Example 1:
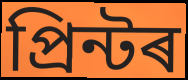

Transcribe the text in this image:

প্ৰিন্টৰ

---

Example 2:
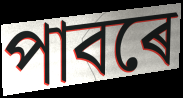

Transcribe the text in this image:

পাবৰে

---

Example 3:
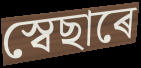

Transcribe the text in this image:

স্বেছাৰে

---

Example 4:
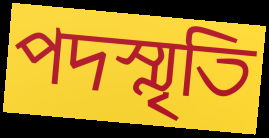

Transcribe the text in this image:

পদস্মৃতি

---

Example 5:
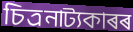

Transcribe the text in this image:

চিত্ৰনাট্যকাৰৰ